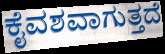
ಕೈವಶವಾಗುತ್ತದೆ